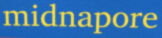
midnapore